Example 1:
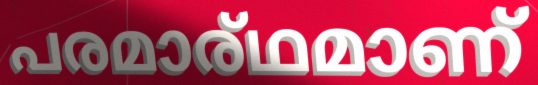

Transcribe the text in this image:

പരമാര്ഥമാണ്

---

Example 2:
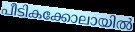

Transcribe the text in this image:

പീടികക്കോലായിൽ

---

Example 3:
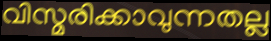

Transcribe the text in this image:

വിസ്മരിക്കാവുന്നതല്ല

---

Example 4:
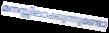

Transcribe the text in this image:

മനസ്സിലാക്കുന്നുണ്ടോ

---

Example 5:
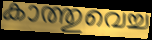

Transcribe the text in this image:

കാത്തുവെച്ച